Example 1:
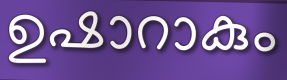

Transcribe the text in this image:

ഉഷാറാകും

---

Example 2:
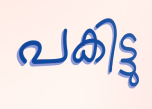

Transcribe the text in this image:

പകിട്ടു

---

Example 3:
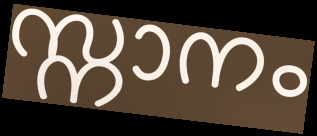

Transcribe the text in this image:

സ്നാനം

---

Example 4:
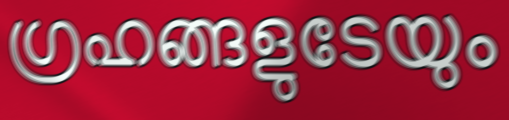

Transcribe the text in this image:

ഗ്രഹങ്ങളുടേയും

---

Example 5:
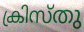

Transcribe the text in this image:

ക്രിസ്തു